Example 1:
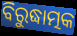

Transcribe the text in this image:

ବିରୁଦ୍ଧାତ୍ମକ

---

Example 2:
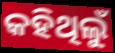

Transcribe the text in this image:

କହିଥିଲୁଁ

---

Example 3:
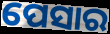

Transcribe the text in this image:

ପେସାର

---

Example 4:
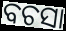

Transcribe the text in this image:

ବଚସା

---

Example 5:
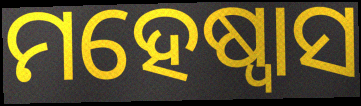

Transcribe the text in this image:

ମହେଷ୍ୱାସ